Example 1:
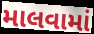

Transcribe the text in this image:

માલવામાં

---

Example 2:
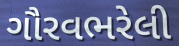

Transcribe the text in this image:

ગૌરવભરેલી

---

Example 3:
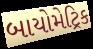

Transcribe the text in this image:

બાયોમેટ્રિક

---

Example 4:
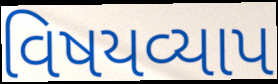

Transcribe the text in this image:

વિષયવ્યાપ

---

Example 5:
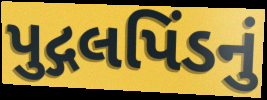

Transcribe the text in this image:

પુદ્ગલપિંડનું